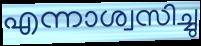
എന്നാശ്വസിച്ചു